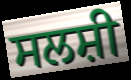
ਸਲਸ਼ੀ